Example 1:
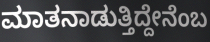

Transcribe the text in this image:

ಮಾತನಾಡುತ್ತಿದ್ದೇನೆಂಬ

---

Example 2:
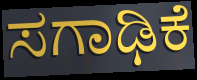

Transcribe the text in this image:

ಸಗಾಢಿಕೆ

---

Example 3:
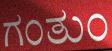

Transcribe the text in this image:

ಗಂತುಂ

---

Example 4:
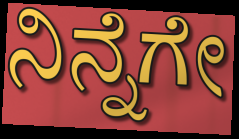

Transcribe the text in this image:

ನಿನ್ನೆಗೇ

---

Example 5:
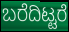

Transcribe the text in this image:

ಬರೆದಿಟ್ಟರೆ